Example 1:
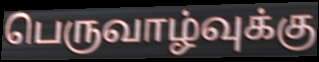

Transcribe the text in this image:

பெருவாழ்வுக்கு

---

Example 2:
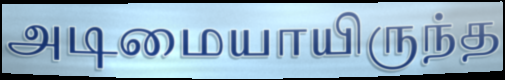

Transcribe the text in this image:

அடிமையாயிருந்த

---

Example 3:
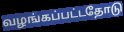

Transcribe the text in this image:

வழங்கப்பட்டதோடு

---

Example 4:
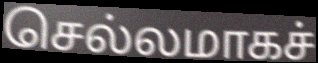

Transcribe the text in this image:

செல்லமாகச்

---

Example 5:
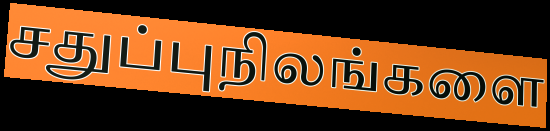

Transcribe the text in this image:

சதுப்புநிலங்களை